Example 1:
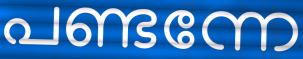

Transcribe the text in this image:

പണ്ടന്നേ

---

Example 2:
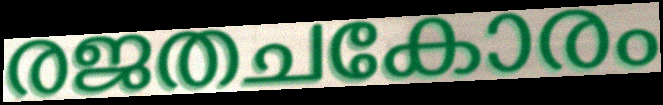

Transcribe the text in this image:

രജതചകോരം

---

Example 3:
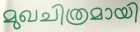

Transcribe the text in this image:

മുഖചിത്രമായി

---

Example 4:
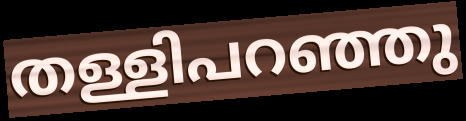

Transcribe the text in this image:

തള്ളിപറഞ്ഞു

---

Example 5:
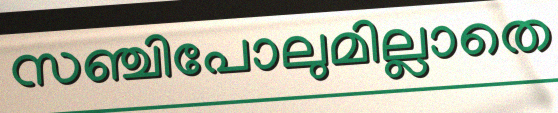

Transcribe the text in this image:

സഞ്ചിപോലുമില്ലാതെ